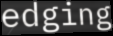
edging